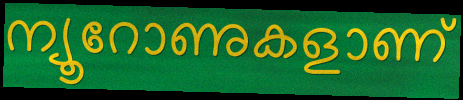
ന്യൂറോണുകളാണ്